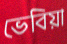
ভেবিয়া